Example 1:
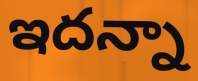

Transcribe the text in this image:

ఇదన్నా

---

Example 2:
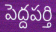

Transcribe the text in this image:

పెద్దపర్తి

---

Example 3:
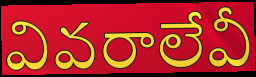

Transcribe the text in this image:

వివరాలేవీ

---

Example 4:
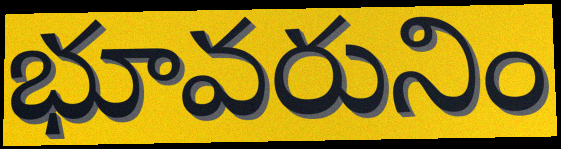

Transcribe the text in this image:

భూవరునిం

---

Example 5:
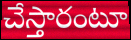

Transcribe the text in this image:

చేస్తారంటూ